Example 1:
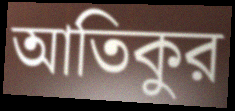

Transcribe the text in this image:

আতিকুর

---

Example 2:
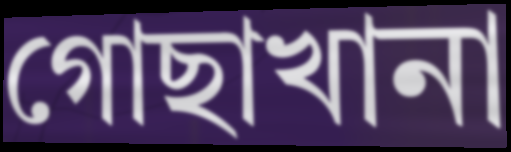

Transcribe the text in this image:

গোছাখানা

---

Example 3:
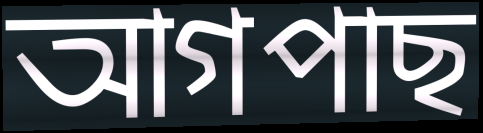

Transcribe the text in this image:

আগপাছ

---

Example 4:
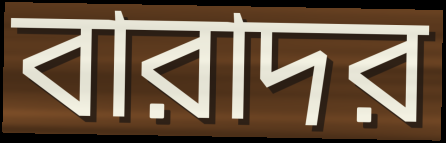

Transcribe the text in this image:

বারাদর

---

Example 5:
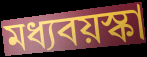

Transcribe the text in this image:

মধ্যবয়স্কা